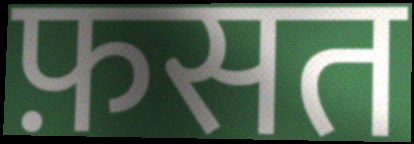
फ़सत